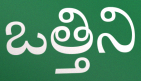
ఒత్తిని